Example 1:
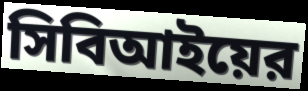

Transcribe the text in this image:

সিবিআইয়ের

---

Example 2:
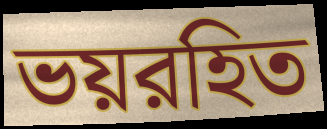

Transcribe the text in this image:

ভয়রহিত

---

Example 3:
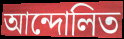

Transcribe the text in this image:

আন্দোলিত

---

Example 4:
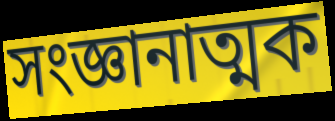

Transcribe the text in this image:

সংজ্ঞানাত্মক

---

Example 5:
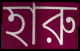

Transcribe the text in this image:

হারু